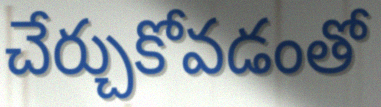
చేర్చుకోవడంతో